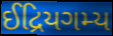
ઈદ્રિયગમ્ય